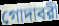
গোদাবরী